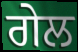
ਗੇਲ